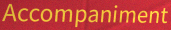
Accompaniment